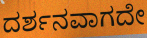
ದರ್ಶನವಾಗದೇ